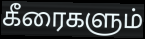
கீரைகளும்